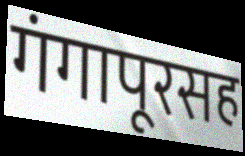
गंगापूरसह